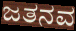
ಜತನವ